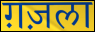
ग़ज़ला